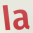
Ia